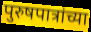
पुरुषपात्रांच्या